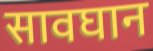
सावघान